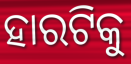
ହାରଟିକୁ